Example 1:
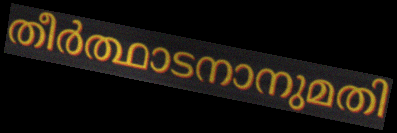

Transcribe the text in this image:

തീർത്ഥാടനാനുമതി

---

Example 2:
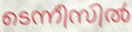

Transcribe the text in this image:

ടെന്നീസിൽ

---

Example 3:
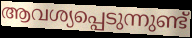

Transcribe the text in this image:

ആവശ്യപ്പെടുന്നുണ്ട്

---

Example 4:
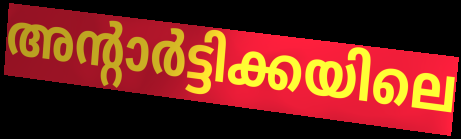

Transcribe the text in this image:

അന്റാർട്ടിക്കയിലെ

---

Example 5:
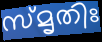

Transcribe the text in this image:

സ്മൃതിഃ